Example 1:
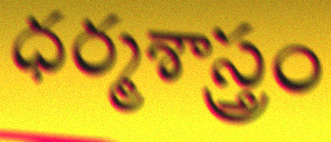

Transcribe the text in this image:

ధర్మశాస్త్రం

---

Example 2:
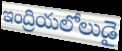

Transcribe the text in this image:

ఇంద్రియలోలుడై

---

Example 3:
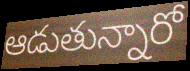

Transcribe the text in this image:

ఆడుతున్నారో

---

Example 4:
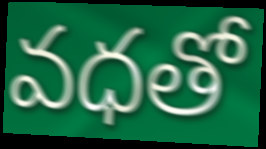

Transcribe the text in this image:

వధతో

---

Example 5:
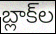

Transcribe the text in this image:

బ్లాక్‌ల